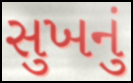
સુખનું